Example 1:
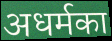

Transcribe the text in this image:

अधर्मका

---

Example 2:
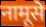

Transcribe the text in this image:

नामूसे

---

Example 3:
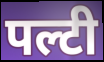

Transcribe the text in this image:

पल्टी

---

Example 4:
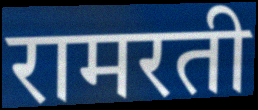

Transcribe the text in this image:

रामरती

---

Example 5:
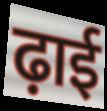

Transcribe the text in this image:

ढ़ाई